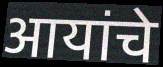
आयांचे